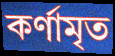
কর্ণামৃত